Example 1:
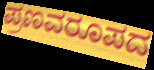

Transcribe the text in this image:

ಪ್ರಣವರೂಪದ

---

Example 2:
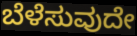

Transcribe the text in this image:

ಬೆಳೆಸುವುದೇ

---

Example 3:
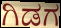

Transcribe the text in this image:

ಗಿಡಗ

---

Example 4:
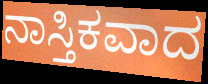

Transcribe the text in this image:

ನಾಸ್ತಿಕವಾದ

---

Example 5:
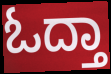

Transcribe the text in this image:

ಓದ್ತಾ